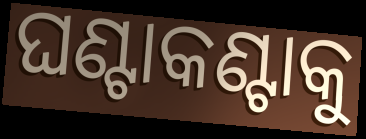
ଘଣ୍ଟାକଣ୍ଟାକୁ